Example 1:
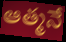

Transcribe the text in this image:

ఆత్మనే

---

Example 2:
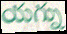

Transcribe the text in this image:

యగ్ను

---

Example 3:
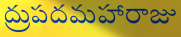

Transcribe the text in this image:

ద్రుపదమహారాజు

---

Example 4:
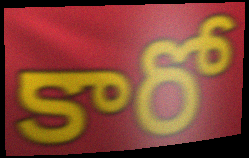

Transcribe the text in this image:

కారో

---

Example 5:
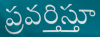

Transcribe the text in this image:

ప్రవర్తిస్తూ